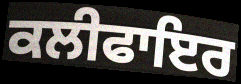
ਕਲੀਫਾਇਰ